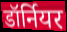
डॉर्नियर